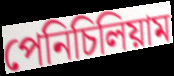
পেনিচিলিয়াম